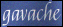
gavache